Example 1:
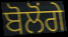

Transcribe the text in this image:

ਬੋਲੋਂਗੇ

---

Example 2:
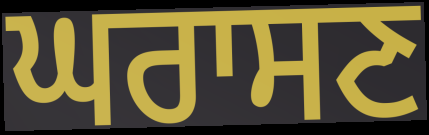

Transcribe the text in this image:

ਘਰਾਸਣ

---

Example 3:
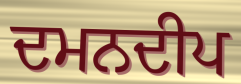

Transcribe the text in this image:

ਦਮਨਦੀਪ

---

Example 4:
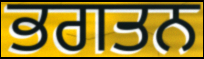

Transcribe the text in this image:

ਭਗਤਨ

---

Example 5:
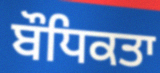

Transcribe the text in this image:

ਬੌਧਿਕਤਾ